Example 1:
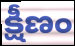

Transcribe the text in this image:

క్షీణం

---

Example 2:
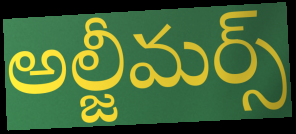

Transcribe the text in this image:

అల్జీమర్స్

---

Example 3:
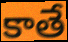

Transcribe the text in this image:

కాతే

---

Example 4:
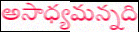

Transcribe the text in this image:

అసాధ్యమన్నది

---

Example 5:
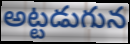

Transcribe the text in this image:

అట్టడుగున